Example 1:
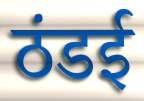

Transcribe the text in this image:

ठंडई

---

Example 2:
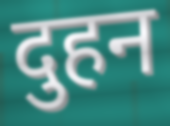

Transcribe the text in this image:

दुहन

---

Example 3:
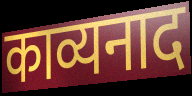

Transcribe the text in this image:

काव्यनाद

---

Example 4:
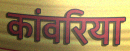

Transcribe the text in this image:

कांवरिया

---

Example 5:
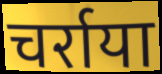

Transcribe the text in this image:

चर्राया